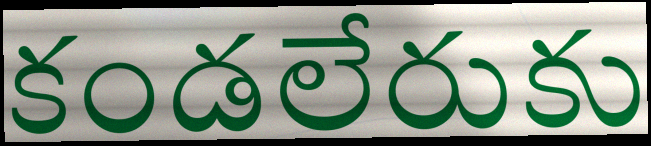
కండలేరుకు